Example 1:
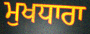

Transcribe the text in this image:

ਮੁਖਧਾਰਾ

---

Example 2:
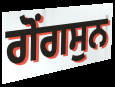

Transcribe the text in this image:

ਗੋਂਗਸੁਨ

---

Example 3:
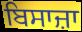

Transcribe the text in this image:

ਬਿਸਾਜ਼ਾ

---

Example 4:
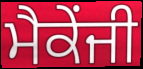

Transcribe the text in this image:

ਮੈਕੇਂਜੀ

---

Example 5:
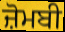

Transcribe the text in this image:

ਜ਼ੋਮਬੀ